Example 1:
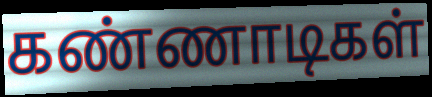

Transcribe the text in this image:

கண்ணாடிகள்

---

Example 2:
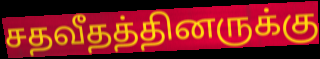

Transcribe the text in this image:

சதவீதத்தினருக்கு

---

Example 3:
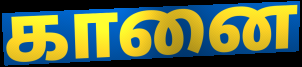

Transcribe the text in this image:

கானை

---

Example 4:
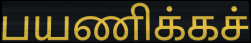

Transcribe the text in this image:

பயணிக்கச்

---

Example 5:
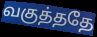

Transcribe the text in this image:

வகுத்ததே